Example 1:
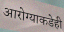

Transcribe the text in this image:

आरोग्याकडेही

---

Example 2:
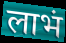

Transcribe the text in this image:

लाभं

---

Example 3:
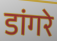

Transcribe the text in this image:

डांगरे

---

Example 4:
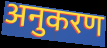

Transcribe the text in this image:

अनुकरण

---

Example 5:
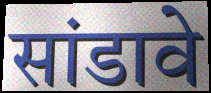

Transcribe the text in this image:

सांडावे